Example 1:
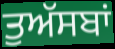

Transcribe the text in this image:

ਤੁਅੱਸਬਾਂ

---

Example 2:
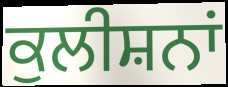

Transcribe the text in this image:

ਕੁਲੀਸ਼ਨਾਂ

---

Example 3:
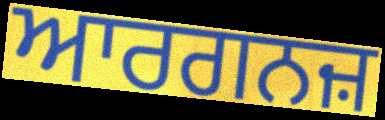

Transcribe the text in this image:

ਆਰਗਨਜ਼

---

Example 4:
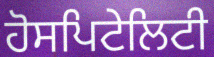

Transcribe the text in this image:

ਹੋਸਪਿਟੇਲਿਟੀ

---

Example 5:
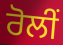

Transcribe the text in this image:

ਰੋਲੀਂ